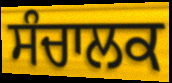
ਸੰਚਾਲਕ